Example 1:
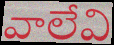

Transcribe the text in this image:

వాలేవి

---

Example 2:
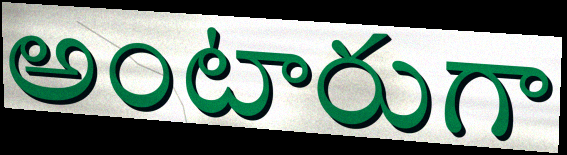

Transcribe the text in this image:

అంటారుగా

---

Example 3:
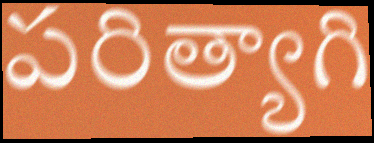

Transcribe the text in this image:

పరిత్యాగి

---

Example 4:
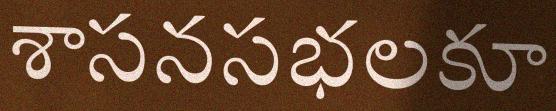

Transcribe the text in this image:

శాసనసభలకూ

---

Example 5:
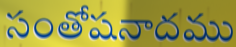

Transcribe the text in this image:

సంతోషనాదము